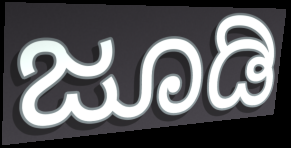
ಜೂಡಿ